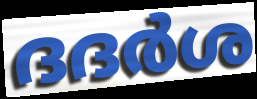
ദദർശ